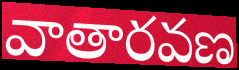
వాతారవణ